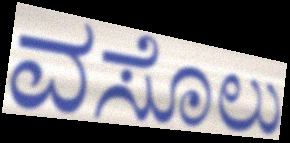
ವಸೊಲು